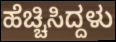
ಹೆಚ್ಚಿಸಿದ್ದಳು